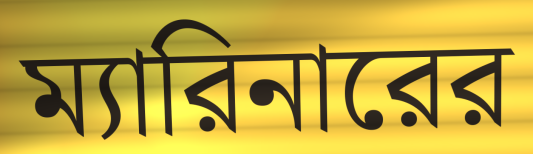
ম্যারিনারের